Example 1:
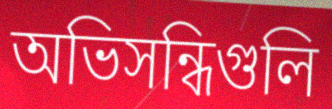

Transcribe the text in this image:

অভিসন্ধিগুলি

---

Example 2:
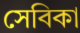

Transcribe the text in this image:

সেবিকা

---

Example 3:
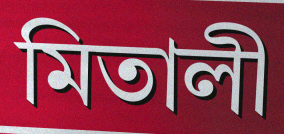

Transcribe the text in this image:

মিতালী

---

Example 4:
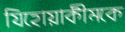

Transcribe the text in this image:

যিহোয়াকীমকে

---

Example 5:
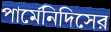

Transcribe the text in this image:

পার্মেনিদিসের